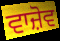
ਵਾਜ਼ੋਵ